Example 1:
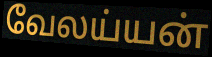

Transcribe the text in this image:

வேலய்யன்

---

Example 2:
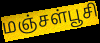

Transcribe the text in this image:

மஞ்சள்பூசி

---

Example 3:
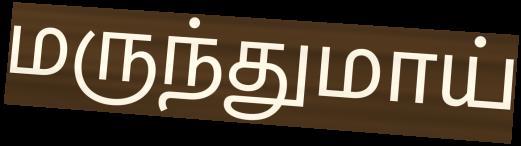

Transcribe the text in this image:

மருந்துமாய்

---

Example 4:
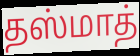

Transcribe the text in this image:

தஸ்மாத்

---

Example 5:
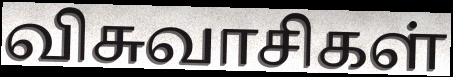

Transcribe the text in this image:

விசுவாசிகள்